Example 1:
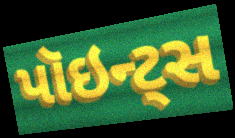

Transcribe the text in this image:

પૉઇન્ટ્સ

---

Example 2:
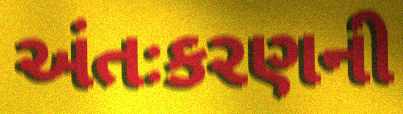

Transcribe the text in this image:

અંતઃકરણની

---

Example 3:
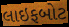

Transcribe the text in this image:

લાઇફબોટ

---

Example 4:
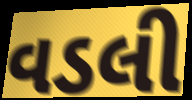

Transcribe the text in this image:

વડલી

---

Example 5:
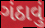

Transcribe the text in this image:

ગંઠાવું